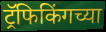
ट्रॅफिकिंगच्या